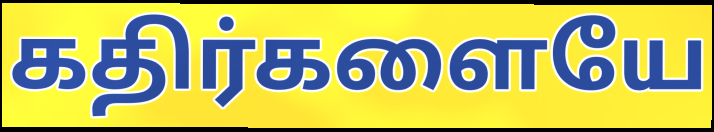
கதிர்களையே